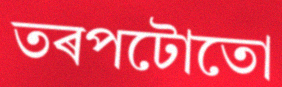
তৰপটোতো